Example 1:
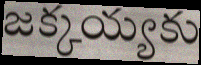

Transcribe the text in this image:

జక్కయ్యకు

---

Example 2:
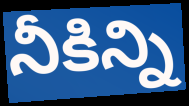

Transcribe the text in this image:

నీకిన్ని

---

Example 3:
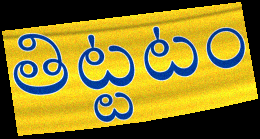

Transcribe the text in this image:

తిట్టటం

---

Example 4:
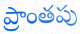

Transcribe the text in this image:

ప్రాంతపు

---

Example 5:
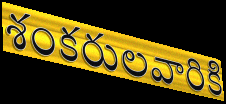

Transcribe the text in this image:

శంకరులవారికి